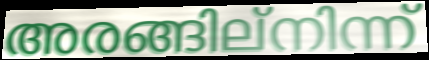
അരങ്ങില്നിന്ന്